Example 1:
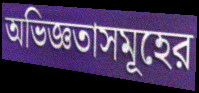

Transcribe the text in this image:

অভিজ্ঞতাসমূহের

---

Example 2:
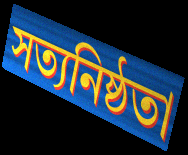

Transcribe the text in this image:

সত্যনিষ্ঠতা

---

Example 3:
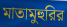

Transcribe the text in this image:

মাতামুহুরির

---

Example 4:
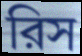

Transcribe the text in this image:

রিস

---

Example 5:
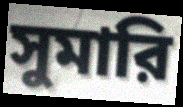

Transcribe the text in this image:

সুমারি